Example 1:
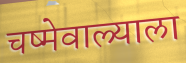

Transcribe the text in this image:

चष्मेवाल्याला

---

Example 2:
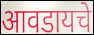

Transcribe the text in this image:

आवडायचे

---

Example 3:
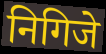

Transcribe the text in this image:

निगिजे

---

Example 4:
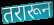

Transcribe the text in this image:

तरारून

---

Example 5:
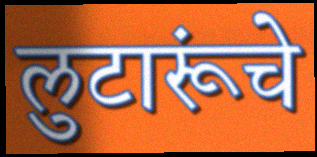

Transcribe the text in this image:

लुटारूंचे